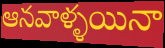
ఆనవాళ్ళయినా